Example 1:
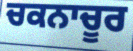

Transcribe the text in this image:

ਚਕਨਾਚੂਰ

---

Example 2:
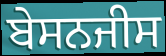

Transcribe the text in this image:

ਬੇਸਨਜੀਸ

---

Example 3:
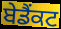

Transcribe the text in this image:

ਬੇਡੈਂਕਟ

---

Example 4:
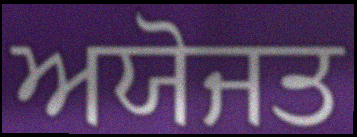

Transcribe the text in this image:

ਅਯੋਜਤ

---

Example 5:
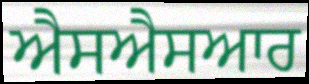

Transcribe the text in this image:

ਐਸਐਸਆਰ